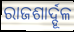
ରାଜଶାର୍ଦ୍ଦୂଳ